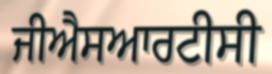
ਜੀਐਸਆਰਟੀਸੀ